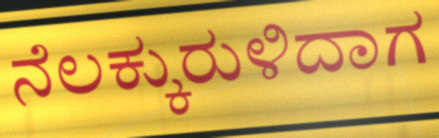
ನೆಲಕ್ಕುರುಳಿದಾಗ